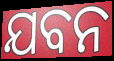
ଯବନ